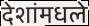
देशांमधले